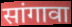
सांगावा